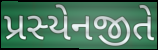
પ્રસ્યેનજીતે